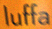
luffa